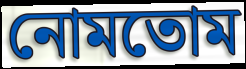
নোমতোম